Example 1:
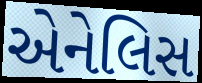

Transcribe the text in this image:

એનેલિસ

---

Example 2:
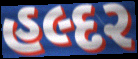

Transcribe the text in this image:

હલ્દર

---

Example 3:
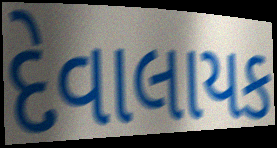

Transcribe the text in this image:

દેવાલાયક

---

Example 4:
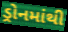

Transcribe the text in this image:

ડ્રોનમાંથી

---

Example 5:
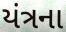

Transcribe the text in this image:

યંત્રના